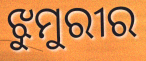
ଝୁମୁରୀର